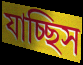
যাচ্ছিস